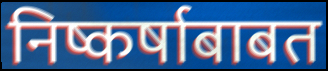
निष्कर्षाबाबत